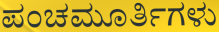
ಪಂಚಮೂರ್ತಿಗಳು